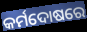
କର୍ମଦୋଷରେ